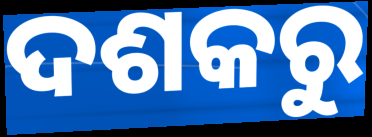
ଦଶକରୁ